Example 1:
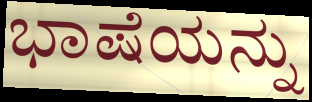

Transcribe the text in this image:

ಭಾಷೆಯನ್ನು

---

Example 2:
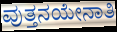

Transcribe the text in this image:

ವುತ್ತನಯೇನಾತಿ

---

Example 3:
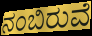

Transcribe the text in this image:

ನಂಬಿರುವೆ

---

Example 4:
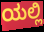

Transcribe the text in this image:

ಯಲ್ಲಿ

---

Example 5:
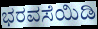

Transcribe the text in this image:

ಭರವಸೆಯಿಡಿ